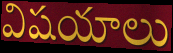
విషయాలు